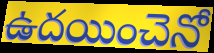
ఉదయించెనో